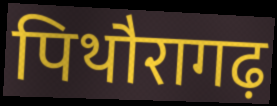
पिथौरागढ़